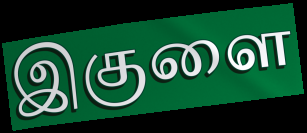
இகுளை